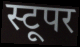
स्टूपर